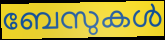
ബേസുകൾ